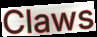
Claws